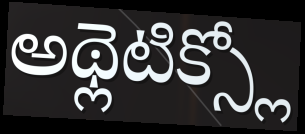
అథ్లెటిక్స్లో